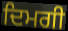
ਦਿਮਗੀ